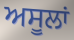
ਅਸੂਲਾਂ